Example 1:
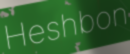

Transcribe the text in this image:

Heshbon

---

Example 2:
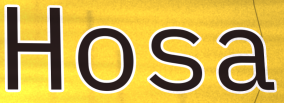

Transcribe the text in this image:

Hosa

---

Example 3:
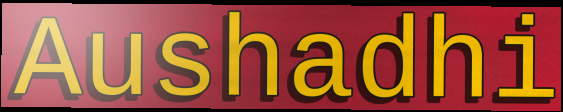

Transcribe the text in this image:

Aushadhi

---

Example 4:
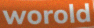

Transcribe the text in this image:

worold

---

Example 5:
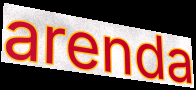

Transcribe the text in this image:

arenda